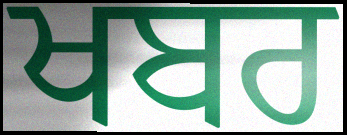
ਖਬਰ